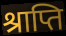
श्राप्ति